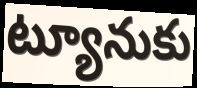
ట్యూనుకు